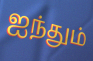
ஐந்தும்